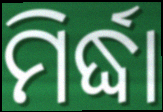
ମିର୍ଦ୍ଧା